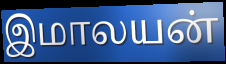
இமாலயன்